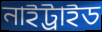
নাইট্রাইড